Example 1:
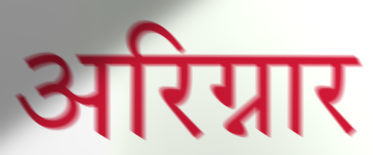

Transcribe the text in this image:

अरिग्नार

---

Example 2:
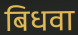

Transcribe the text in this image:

बिधवा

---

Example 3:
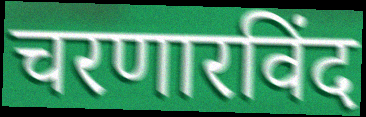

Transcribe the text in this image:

चरणारविंद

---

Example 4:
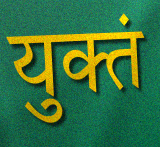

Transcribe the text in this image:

युक्तं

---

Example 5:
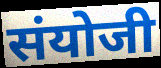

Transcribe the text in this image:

संयोजी